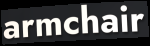
armchair